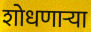
शोधणाऱ्या